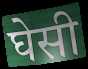
घेसी